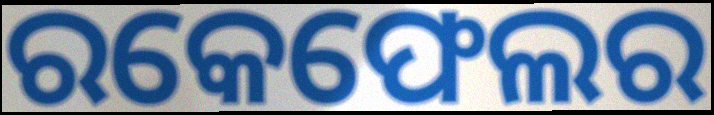
ରକେଫେଲର